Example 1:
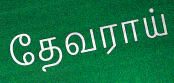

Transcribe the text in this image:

தேவராய்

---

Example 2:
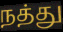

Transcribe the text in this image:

நத்து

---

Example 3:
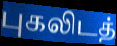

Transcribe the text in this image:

புகலிடத்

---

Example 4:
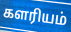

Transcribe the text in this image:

களரியம்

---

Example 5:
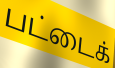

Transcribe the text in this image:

பட்டைக்